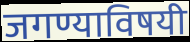
जगण्याविषयी